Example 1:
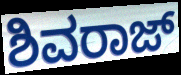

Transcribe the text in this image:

ಶಿವರಾಜ್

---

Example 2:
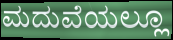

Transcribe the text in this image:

ಮದುವೆಯಲ್ಲೂ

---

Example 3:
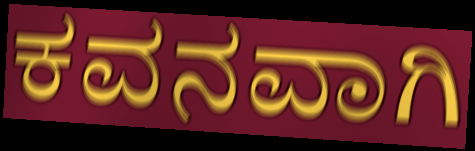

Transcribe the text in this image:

ಕವನವಾಗಿ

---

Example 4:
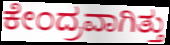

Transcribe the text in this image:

ಕೇಂದ್ರವಾಗಿತ್ತು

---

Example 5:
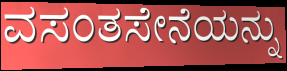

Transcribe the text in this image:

ವಸಂತಸೇನೆಯನ್ನು